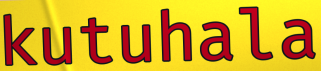
kutuhala